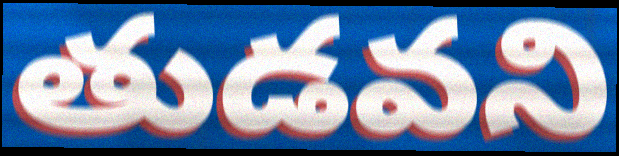
తుడవని